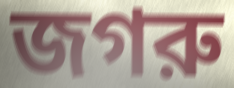
জগরু